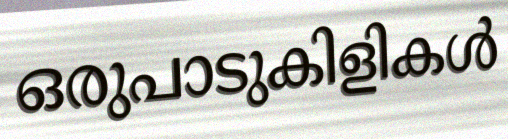
ഒരുപാടുകിളികൾ